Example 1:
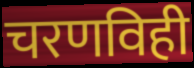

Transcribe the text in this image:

चरणविही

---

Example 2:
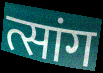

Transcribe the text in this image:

त्सांग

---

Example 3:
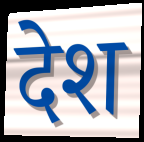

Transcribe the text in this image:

देश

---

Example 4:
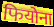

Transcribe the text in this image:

फियोना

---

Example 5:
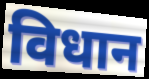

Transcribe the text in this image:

विधान